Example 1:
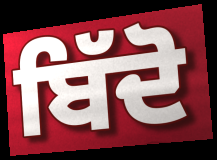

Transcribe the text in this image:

ਬਿੱਦੋ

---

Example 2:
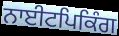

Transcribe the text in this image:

ਨਾਈਟਪਿਕਿੰਗ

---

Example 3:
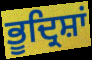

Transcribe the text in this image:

ਭੂਦ੍ਰਿਸ਼ਾਂ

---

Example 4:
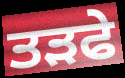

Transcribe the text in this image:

ਤੜਫੇ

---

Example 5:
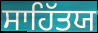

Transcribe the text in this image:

ਸਾਹਿੱਤਯ